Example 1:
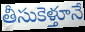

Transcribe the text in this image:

తీసుకెళ్తూనే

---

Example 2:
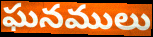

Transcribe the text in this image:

ఘనములు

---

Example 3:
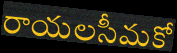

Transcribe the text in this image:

రాయలసీమకో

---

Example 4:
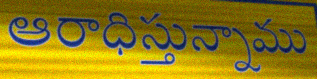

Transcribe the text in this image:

ఆరాధిస్తున్నాము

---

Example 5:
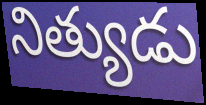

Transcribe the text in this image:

నిత్యుడు